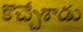
కొచ్చేశాడు